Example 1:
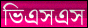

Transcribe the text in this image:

ভিএসএস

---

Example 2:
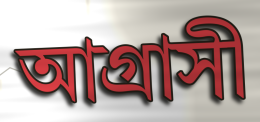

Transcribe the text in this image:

আগ্রাসী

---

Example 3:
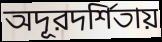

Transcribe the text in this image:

অদূরদর্শিতায়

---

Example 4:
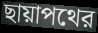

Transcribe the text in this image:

ছায়াপথের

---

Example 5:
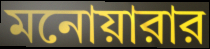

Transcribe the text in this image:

মনোয়ারার